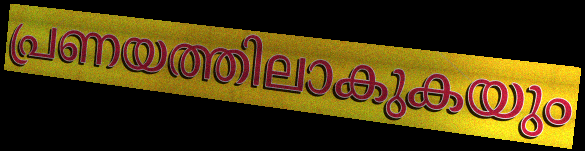
പ്രണയത്തിലാകുകയും